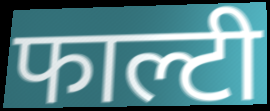
फाल्टी